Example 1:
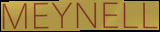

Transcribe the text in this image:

MEYNELL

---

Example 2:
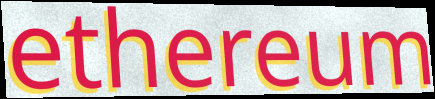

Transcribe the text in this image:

ethereum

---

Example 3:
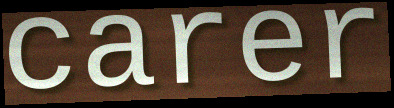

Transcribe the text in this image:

carer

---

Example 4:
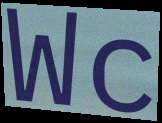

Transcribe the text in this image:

Wc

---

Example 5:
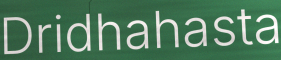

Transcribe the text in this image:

Dridhahasta